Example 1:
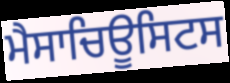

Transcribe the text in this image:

ਮੈਸਾਚਿਊਸਿਟਸ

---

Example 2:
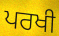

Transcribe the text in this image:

ਪਰਖੀ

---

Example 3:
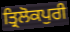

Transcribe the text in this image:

ਤ੍ਰਿਲੋਕਪੁਰੀ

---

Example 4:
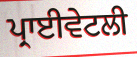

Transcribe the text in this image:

ਪ੍ਰਾਈਵੇਟਲੀ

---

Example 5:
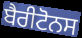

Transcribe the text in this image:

ਬੈਰੀਟੋਨਸ